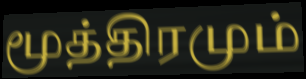
மூத்திரமும்